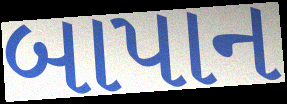
બાપાન